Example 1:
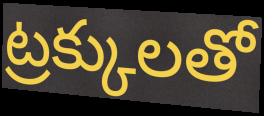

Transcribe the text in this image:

ట్రక్కులతో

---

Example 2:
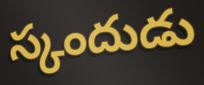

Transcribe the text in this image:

స్కందుడు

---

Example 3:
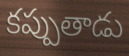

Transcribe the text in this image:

కప్పుతాడు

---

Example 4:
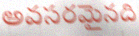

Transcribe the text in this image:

అవసరమైనది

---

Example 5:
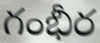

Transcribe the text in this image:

గంభీర